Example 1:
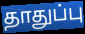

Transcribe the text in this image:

தாதுப்பு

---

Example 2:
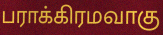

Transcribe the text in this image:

பராக்கிரமவாகு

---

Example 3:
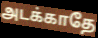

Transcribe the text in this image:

அடக்காதே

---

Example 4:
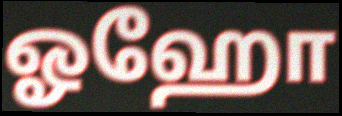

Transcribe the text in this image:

ஓஹோ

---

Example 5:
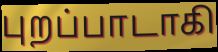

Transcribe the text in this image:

புறப்பாடாகி